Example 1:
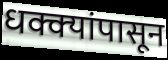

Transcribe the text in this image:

धक्क्यांपासून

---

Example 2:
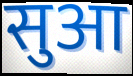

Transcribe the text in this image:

सुआ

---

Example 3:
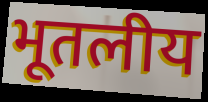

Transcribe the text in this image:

भूतलीय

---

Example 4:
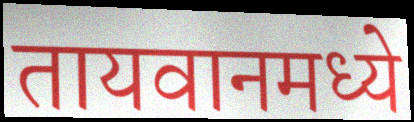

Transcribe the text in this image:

तायवानमध्ये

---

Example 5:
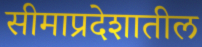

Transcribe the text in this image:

सीमाप्रदेशातील